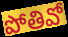
పోతివో